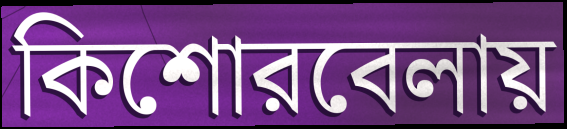
কিশোরবেলায়